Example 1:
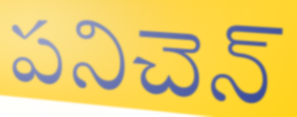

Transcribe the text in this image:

పనిచెన్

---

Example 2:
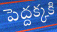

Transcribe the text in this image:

పెద్దక్కకి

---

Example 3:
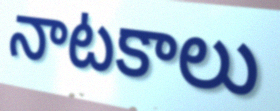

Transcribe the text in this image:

నాటకాలు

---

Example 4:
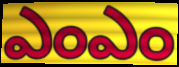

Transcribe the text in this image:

ఎంఎం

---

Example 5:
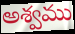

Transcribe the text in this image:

అశ్వము